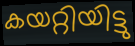
കയറ്റിയിട്ടു